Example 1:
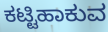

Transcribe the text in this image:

ಕಟ್ಟಿಹಾಕುವ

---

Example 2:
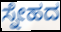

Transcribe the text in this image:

ಸ್ನೇಹದ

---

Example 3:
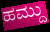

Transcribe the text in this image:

ಹಮ್ದು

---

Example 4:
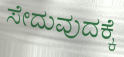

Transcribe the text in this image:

ಸೇದುವುದಕ್ಕೆ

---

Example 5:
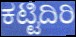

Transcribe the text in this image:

ಕಟ್ಟಿದಿರಿ